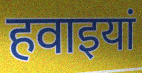
हवाइयां